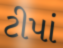
ટીપાં